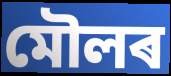
মৌলৰ